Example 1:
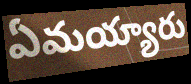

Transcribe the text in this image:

ఏమయ్యారు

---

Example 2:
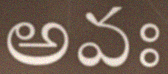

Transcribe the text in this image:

అవః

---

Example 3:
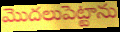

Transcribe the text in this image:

మొదలుపెట్టాను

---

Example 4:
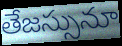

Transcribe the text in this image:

తేజస్సునూ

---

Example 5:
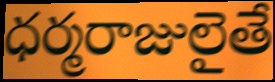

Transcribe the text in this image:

ధర్మరాజులైతే